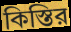
কিস্তির